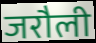
जरौली